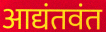
आद्यंतवंत